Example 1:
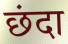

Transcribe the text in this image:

छंदा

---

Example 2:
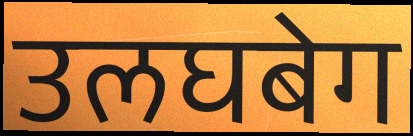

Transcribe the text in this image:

उलघबेग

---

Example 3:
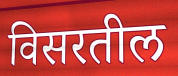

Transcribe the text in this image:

विसरतील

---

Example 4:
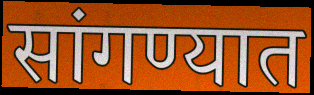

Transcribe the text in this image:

सांगण्यात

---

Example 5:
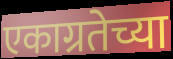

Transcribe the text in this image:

एकाग्रतेच्या